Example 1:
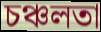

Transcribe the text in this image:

চঞ্চলতা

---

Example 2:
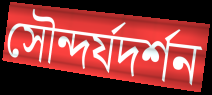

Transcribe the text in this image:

সৌন্দর্যদর্শন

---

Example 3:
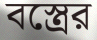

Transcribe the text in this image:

বস্ত্রের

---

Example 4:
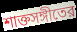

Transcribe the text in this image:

শাক্তসঙ্গীতের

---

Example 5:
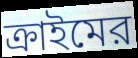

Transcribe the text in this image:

ক্রাইমের